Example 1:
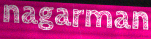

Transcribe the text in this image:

nagarman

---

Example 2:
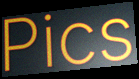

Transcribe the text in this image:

Pics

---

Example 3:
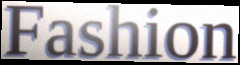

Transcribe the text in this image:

Fashion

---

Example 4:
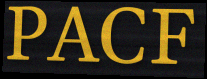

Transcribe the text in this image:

PACF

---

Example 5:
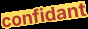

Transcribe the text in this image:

confidant